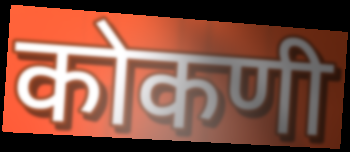
कोकणी